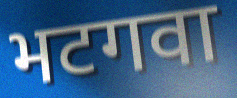
भटगवा